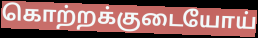
கொற்றக்குடையோய்